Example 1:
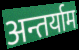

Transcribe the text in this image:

अन्तर्याम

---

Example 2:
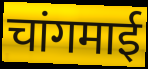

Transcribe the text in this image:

चांगमाई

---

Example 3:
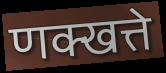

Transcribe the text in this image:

णक्खत्ते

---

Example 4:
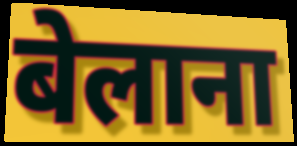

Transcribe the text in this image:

बेलाना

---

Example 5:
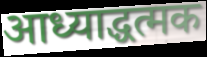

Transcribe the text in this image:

आध्याद्धत्मक